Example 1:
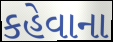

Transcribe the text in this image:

કહેવાના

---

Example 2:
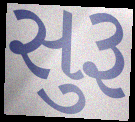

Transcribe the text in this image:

સુરૂ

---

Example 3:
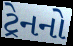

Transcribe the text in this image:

ટ્રેનનો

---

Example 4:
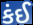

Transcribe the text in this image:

કંઈ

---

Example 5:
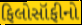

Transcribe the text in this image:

ફિલોસૉફીનો